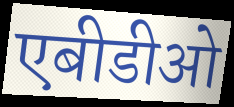
एबीडीओ